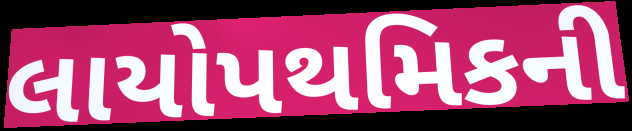
લાયોપથમિકની